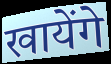
खायेंगे